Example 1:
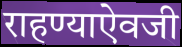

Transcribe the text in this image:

राहण्याऐवजी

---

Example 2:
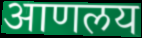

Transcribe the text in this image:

आणलय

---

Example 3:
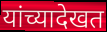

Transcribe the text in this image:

यांच्यादेखत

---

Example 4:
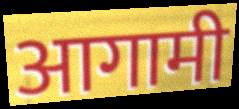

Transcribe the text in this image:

आगामी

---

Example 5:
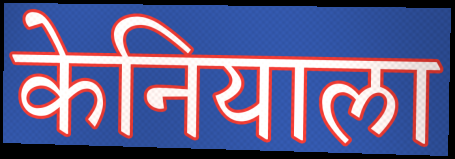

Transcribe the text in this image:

केनियाला